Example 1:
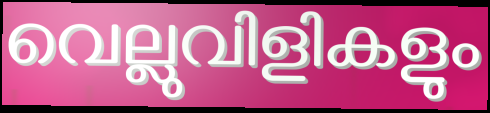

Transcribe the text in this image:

വെല്ലുവിളികളും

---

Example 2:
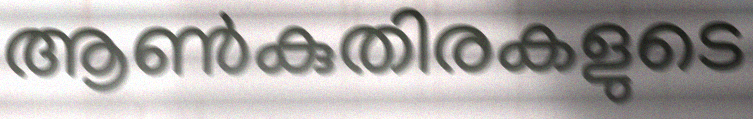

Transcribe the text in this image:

ആൺകുതിരകളുടെ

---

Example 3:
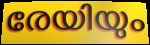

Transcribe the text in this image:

രേയിയും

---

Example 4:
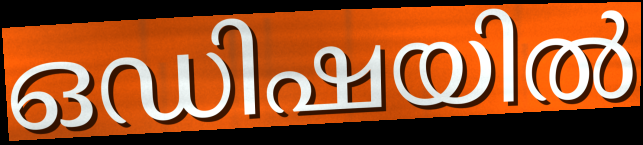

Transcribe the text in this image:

ഒഡിഷയിൽ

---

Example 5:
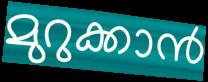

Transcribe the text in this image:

മുറുക്കാൻ